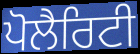
ਪੋਲੈਰਿਟੀ